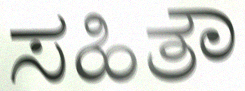
ಸಹಿತೌ